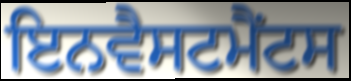
ਇਨਵੈਸਟਮੈਂਟਸ